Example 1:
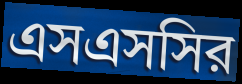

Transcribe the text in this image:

এসএসসির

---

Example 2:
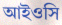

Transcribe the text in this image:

আইওসি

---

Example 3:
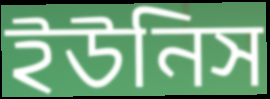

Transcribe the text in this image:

ইউনিস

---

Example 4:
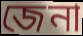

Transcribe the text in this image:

জেনা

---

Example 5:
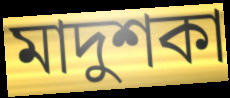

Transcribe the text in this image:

মাদুশকা